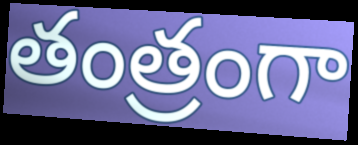
తంత్రంగా